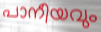
പാനീയവും